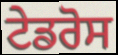
ਟੇਡਰੋਸ